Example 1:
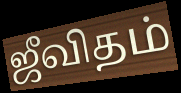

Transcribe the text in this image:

ஜீவிதம்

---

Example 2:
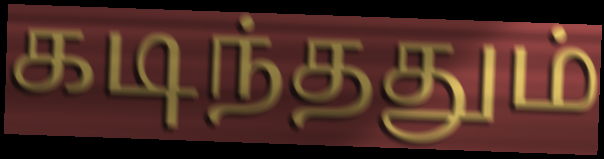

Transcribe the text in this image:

கடிந்ததும்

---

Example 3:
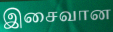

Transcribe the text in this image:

இசைவான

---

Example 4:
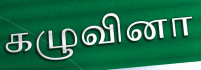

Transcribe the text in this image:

கழுவினா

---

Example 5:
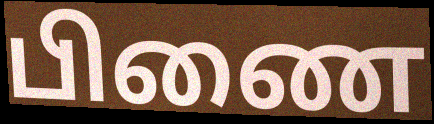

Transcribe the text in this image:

பிணை